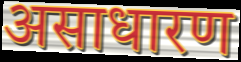
असाधारण